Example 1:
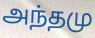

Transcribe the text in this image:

அந்தமு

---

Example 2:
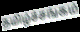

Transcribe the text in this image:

தமிழ்ச்சங்கம்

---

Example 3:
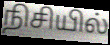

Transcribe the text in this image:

நிசியில்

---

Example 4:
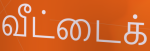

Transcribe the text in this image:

வீட்டைக்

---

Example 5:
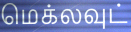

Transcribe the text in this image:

மெக்லவுட்